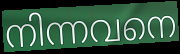
നിന്നവനെ